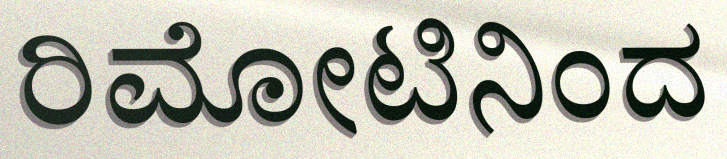
ರಿಮೋಟಿನಿಂದ